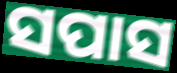
ସପାସ